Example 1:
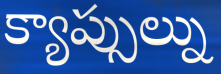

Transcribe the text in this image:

క్యాప్సుల్ను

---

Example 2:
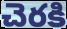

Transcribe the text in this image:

చెరకి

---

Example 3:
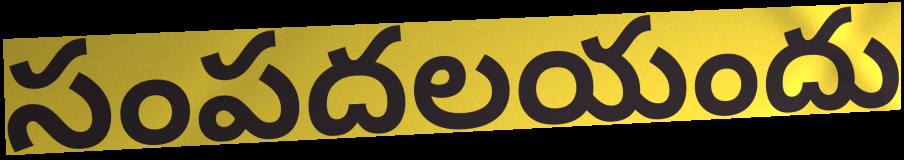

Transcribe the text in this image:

సంపదలయందు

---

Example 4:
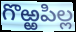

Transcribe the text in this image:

గొఱ్ఱపిల్ల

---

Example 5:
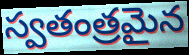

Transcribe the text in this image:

స్వతంత్రమైన